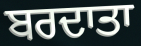
ਬਰਦਾਤਾ